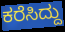
ಕರೆಸಿದ್ದು